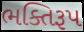
ભક્તિરૂપ